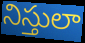
నిస్తులా